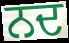
ਨਦ